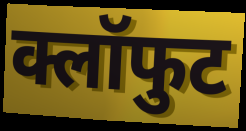
क्लॉफुट